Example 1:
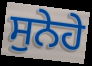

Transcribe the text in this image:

ਸੁਨੇਹੇ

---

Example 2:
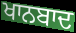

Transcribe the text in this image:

ਖਾਨਬਾਦ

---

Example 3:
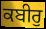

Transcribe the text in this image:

ਕਬੀਰੁ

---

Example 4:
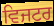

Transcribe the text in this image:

ਵਿਜਟਰ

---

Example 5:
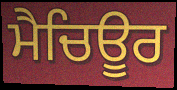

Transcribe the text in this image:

ਮੈਚਿਊਰ